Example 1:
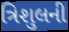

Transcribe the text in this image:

ત્રિશુલની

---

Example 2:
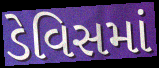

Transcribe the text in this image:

ડેવિસમાં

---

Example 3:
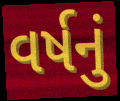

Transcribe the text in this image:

વર્ષનું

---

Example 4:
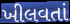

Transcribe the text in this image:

ખીલવતાં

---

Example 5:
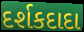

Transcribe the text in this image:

દર્શકદાદા